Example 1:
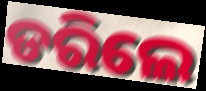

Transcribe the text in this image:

ଡରିଲେ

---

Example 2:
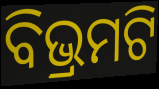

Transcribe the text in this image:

ବିଭ୍ରମଟି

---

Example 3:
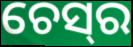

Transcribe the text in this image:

ଚେସ୍‌ର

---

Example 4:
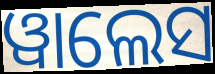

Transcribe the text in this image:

ୱାଲେସ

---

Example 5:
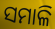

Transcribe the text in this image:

ସମାଳି